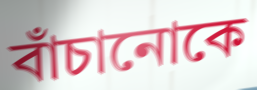
বাঁচানোকে